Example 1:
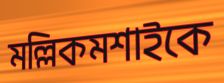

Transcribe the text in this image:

মল্লিকমশাইকে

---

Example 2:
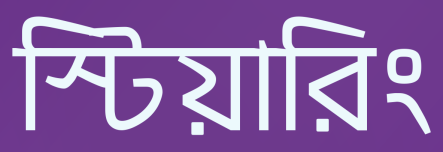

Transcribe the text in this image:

স্টিয়ারিং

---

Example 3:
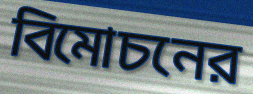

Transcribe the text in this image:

বিমোচনের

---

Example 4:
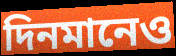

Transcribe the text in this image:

দিনমানেও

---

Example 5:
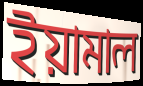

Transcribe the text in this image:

ইয়ামাল